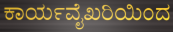
ಕಾರ್ಯವೈಖರಿಯಿಂದ